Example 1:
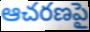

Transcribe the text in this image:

ఆచరణపై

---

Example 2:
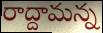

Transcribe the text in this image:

రాద్దామన్న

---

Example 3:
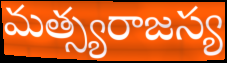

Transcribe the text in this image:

మత్స్యరాజస్య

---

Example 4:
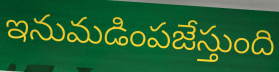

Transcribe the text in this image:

ఇనుమడింపజేస్తుంది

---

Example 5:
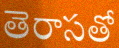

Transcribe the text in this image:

తెరాసతో